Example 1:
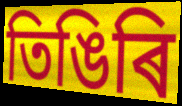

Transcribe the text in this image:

তিঙিৰি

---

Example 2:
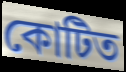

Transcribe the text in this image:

কোটিত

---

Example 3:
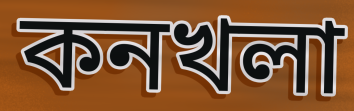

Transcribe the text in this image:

কনখলা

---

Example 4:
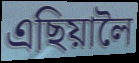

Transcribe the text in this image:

এছিয়ালৈ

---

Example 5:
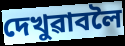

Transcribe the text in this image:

দেখুৱাবলৈ